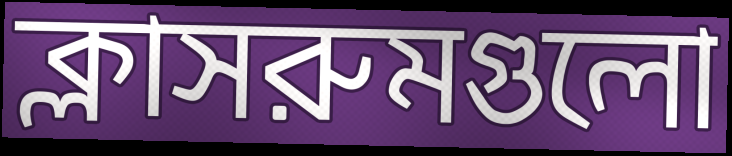
ক্লাসরুমগুলো